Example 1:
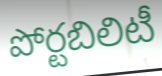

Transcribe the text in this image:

పోర్టబిలిటీ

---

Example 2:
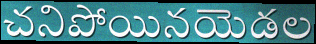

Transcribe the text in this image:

చనిపోయినయెడల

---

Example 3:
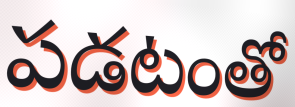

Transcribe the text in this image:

పడటంతో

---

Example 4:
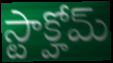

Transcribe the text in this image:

స్టాక్హోమ్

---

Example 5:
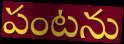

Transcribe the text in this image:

పంటను